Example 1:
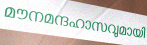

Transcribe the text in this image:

മൗനമന്ദഹാസവുമായി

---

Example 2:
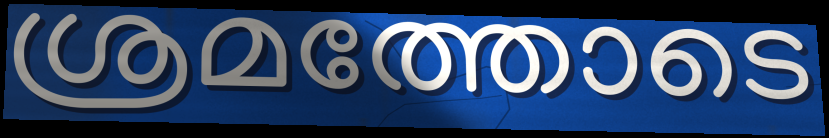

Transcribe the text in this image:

ശ്രമത്തോടെ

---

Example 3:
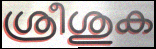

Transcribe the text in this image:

ശ്രീശുക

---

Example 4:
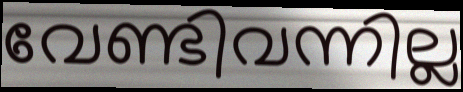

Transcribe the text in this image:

വേണ്ടിവന്നില്ല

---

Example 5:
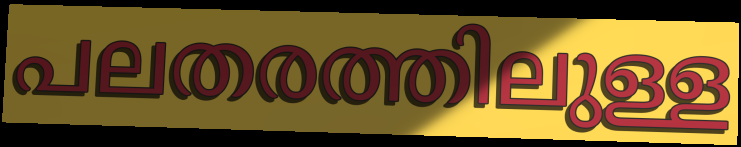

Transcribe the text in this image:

പലതരത്തിലുള്ള